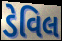
ડેવિલ